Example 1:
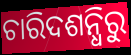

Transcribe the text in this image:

ଚାରିଦଶନ୍ଧିରୁ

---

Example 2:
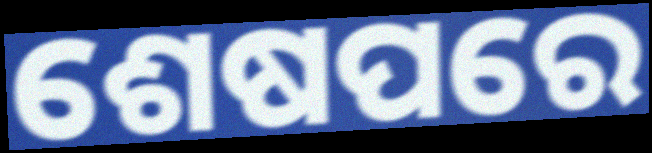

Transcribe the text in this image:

ଶେଷପରେ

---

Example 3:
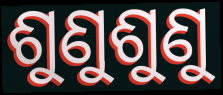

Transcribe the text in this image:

ଶୁଣୁଶୁଣୁ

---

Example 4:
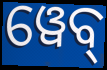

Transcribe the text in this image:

ୱେବ୍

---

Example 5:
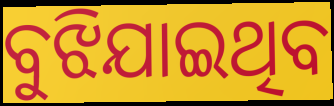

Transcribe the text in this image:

ବୁଝିଯାଇଥିବ